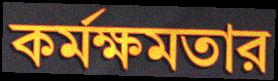
কর্মক্ষমতার